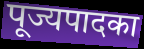
पूज्यपादका